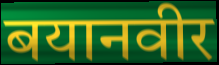
बयानवीर